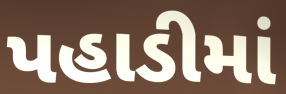
પહાડીમાં